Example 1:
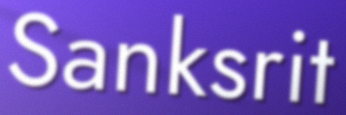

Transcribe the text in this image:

Sanksrit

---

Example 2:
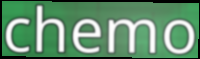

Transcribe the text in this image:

chemo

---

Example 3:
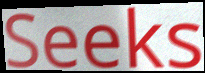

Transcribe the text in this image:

Seeks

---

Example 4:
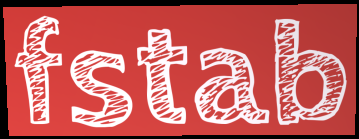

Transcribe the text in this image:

fstab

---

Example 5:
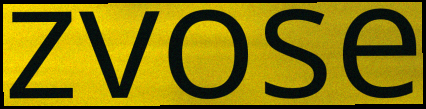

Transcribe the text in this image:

zvose